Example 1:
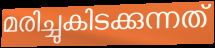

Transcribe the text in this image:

മരിച്ചുകിടക്കുന്നത്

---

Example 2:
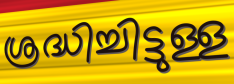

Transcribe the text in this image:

ശ്രദ്ധിച്ചിട്ടുള്ള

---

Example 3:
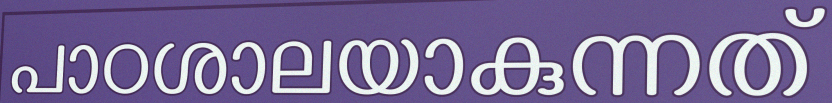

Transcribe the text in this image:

പാഠശാലയാകുന്നത്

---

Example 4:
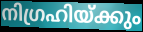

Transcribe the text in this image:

നിഗ്രഹിയ്ക്കും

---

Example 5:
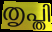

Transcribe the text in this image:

തൃപ്തി